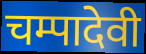
चम्पादेवी